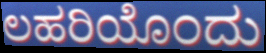
ಲಹರಿಯೊಂದು